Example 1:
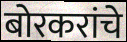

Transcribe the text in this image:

बोरकरांचे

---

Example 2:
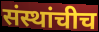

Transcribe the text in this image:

संस्थांचीच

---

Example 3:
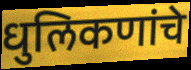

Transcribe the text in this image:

धुलिकणांचे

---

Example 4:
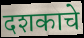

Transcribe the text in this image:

दशकाचे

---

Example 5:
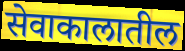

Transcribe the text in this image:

सेवाकालातील